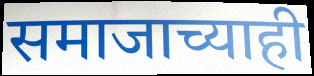
समाजाच्याही